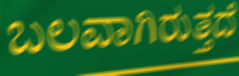
ಬಲವಾಗಿರುತ್ತದೆ